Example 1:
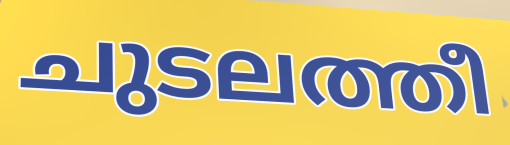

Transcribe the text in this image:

ചുടലത്തീ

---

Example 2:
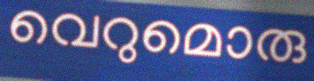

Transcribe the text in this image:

വെറുമൊരു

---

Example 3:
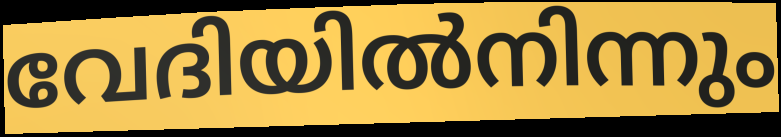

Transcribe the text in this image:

വേദിയിൽനിന്നും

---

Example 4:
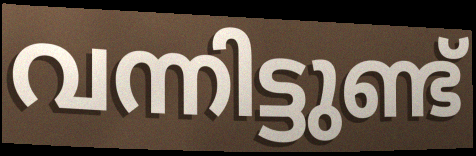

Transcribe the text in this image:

വന്നിട്ടുണ്ട്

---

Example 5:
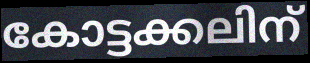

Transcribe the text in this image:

കോട്ടക്കലിന്